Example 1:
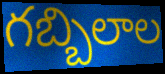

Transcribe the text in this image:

గబ్బిలాల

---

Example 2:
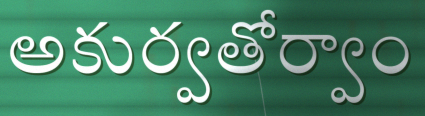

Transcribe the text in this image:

అకుర్వతోర్వాం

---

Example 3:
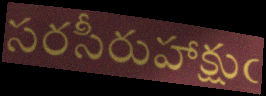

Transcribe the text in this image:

సరసీరుహాక్షుఁ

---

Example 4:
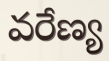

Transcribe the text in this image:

వరేణ్య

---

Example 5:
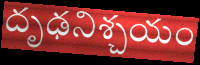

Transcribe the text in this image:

దృఢనిశ్చయం